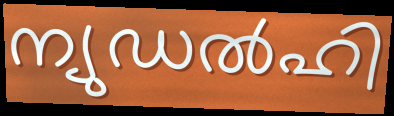
ന്യുഡൽഹി